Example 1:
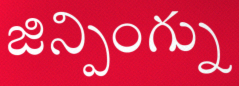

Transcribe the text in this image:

జిన్పింగ్ను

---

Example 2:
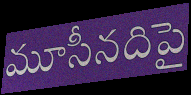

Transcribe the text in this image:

మూసీనదిపై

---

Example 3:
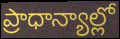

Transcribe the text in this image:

ప్రాధాన్యాల్లో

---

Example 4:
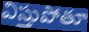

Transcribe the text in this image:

విస్తుపోతూ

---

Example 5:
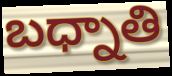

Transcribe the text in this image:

బధ్నాతి